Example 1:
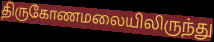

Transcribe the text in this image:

திருகோணமலையிலிருந்து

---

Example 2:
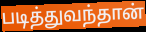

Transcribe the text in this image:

படித்துவந்தான்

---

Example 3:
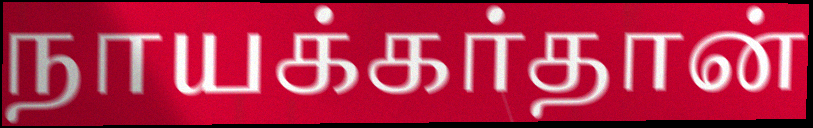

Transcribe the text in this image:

நாயக்கர்தான்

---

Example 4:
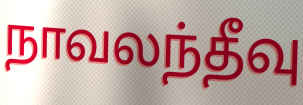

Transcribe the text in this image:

நாவலந்தீவு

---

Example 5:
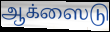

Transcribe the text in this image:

ஆக்ஸைடு